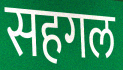
सहगल